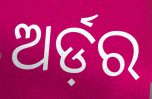
ଅର୍ଡ଼ର